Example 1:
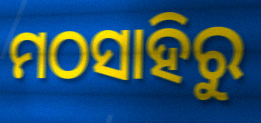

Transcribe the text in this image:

ମଠସାହିରୁ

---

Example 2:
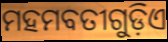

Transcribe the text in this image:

ମହମବତୀଗୁଡ଼ିଏ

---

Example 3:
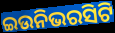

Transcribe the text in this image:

ଇଉନିଭରସିଟି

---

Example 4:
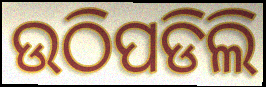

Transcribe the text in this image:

ଉଠିପଡିଲି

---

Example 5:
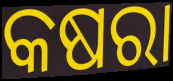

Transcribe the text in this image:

କଷରା